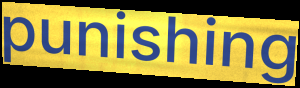
punishing